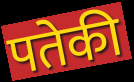
पतेकी